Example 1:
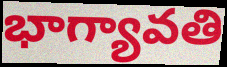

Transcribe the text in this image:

భాగ్యావతి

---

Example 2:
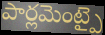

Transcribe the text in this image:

పార్లమెంట్పై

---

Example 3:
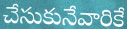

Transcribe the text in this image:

చేసుకునేవారికే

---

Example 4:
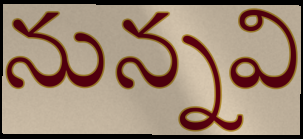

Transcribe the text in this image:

నున్నవి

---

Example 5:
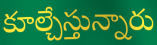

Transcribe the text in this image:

కూల్చేస్తున్నారు